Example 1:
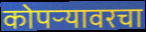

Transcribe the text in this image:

कोपऱ्यावरचा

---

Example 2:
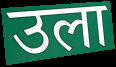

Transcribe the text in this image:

उला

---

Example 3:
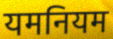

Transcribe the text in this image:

यमनियम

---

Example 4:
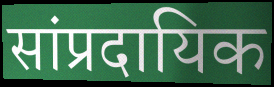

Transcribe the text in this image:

सांप्रदायिक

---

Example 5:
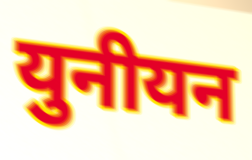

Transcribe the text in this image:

युनीयन